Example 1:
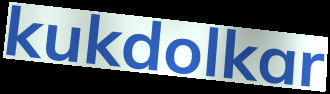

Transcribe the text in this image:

kukdolkar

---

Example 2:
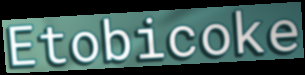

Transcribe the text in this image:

Etobicoke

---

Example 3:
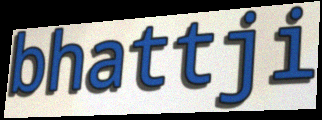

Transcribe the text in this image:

bhattji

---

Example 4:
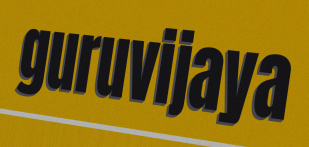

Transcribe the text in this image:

guruvijaya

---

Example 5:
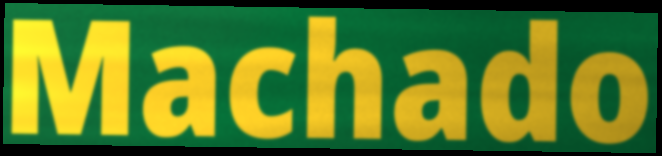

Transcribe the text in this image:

Machado